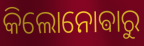
କିଲୋନୋଵାରୁ